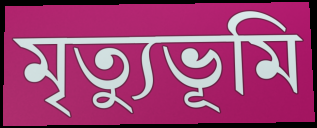
মৃত্যুভূমি